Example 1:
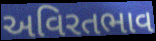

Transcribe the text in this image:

અવિરતભાવ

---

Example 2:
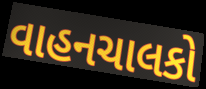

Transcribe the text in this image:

વાહનચાલકો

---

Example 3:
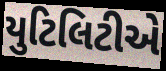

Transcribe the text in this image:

યુટિલિટીએ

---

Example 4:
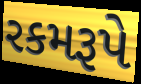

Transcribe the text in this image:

રકમરૂપે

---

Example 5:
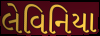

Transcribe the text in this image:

લેવિનિયા